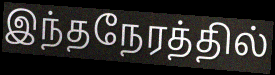
இந்தநேரத்தில்